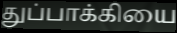
துப்பாக்கியை